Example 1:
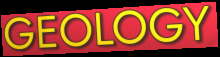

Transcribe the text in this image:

GEOLOGY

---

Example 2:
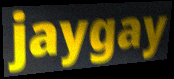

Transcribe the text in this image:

jaygay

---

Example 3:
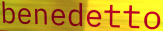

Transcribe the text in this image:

benedetto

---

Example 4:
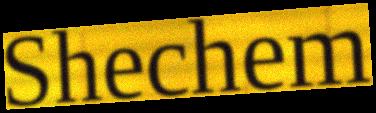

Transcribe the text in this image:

Shechem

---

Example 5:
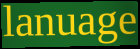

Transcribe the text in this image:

lanuage